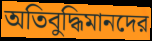
অতিবুদ্ধিমানদের